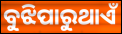
ବୁଝିପାରୁଥାଏଁ